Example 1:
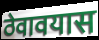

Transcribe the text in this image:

ठेवावयास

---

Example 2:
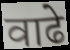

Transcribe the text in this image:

वाढे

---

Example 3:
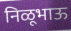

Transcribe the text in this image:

निळूभाऊ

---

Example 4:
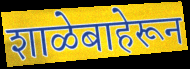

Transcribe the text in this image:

शाळेबाहेरून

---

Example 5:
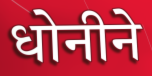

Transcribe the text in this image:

धोनीने